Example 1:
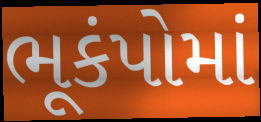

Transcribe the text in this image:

ભૂકંપોમાં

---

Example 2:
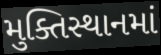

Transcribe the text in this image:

મુક્તિસ્થાનમાં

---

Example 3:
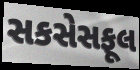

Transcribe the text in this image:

સકસેસફૂલ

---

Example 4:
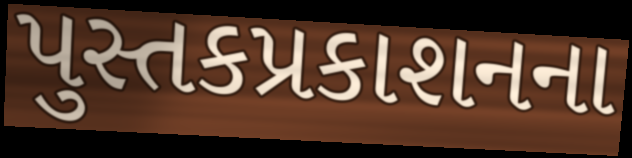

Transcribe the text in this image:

પુસ્તકપ્રકાશનના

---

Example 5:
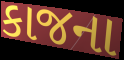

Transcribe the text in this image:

કાજના